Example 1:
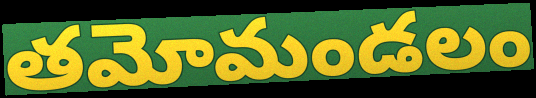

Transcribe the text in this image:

తమోమండలం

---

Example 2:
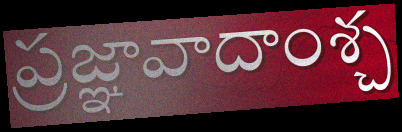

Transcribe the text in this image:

ప్రజ్ఞావాదాంశ్చ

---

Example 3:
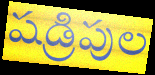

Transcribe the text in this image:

షడ్రిపుల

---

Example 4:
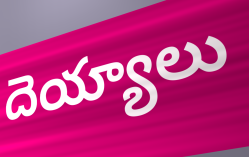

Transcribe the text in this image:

దెయ్యాలు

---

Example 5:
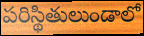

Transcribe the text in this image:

పరిస్థితులుండాలో